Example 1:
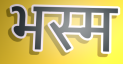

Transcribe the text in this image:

भस्म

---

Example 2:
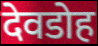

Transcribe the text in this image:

देवडोह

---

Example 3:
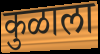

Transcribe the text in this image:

कुळाला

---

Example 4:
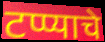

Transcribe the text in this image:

टप्प्याचे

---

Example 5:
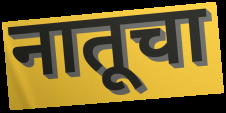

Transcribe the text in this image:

नातूचा